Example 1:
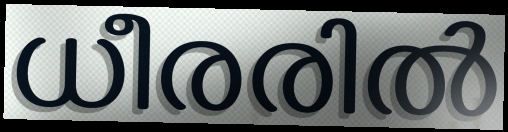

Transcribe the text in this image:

ധീരരിൽ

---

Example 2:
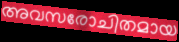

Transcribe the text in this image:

അവസരോചിതമായ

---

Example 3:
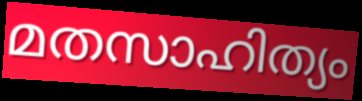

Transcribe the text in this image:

മതസാഹിത്യം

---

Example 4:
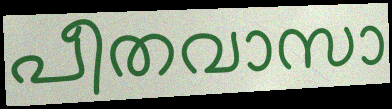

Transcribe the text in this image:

പീതവാസാ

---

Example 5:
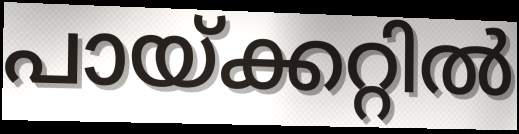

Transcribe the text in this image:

പായ്ക്കറ്റിൽ